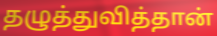
தழுத்துவித்தான்